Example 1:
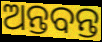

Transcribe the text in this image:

ଅନ୍ତବନ୍ତ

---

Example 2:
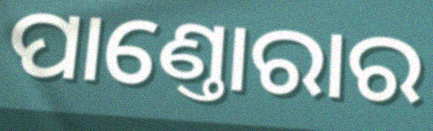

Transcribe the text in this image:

ପାଣ୍ତୋରାର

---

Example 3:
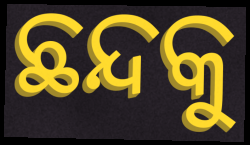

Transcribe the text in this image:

ଛନ୍ଦକୁ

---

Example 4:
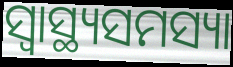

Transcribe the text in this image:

ସ୍ୱାସ୍ଥ୍ୟସମସ୍ୟା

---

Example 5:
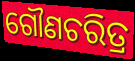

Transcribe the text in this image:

ଗୌଣଚରିତ୍ର